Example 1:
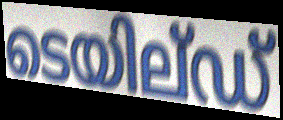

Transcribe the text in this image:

ടെയില്ഡ്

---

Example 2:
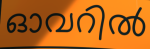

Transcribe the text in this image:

ഓവറിൽ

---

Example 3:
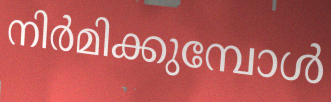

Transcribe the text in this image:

നിർമിക്കുമ്പോൾ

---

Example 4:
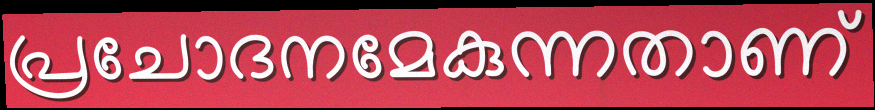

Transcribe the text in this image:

പ്രചോദനമേകുന്നതാണ്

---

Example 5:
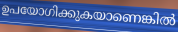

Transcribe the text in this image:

ഉപയോഗിക്കുകയാണെങ്കിൽ